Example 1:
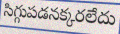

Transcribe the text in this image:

సిగ్గుపడనక్కరలేదు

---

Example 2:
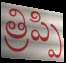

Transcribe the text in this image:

త్రిప్పి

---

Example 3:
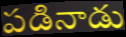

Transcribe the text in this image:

పడినాడు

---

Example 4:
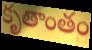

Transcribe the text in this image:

కృతాంతం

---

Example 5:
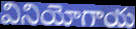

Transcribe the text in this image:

వినియోగాయ